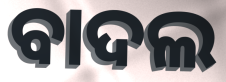
ବାଦଲ